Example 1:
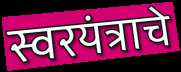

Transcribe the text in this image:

स्वरयंत्राचे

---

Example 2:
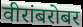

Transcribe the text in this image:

वीरांबरोबर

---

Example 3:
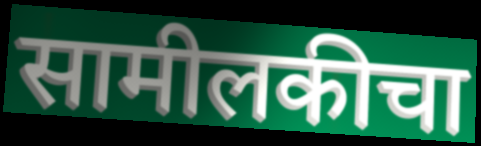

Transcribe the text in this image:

सामीलकीचा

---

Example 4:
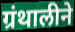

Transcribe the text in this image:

ग्रंथालीने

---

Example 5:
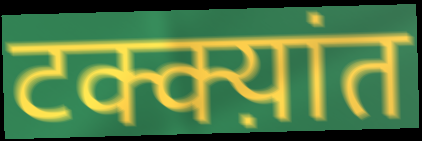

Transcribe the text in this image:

टक्क्य़ांत